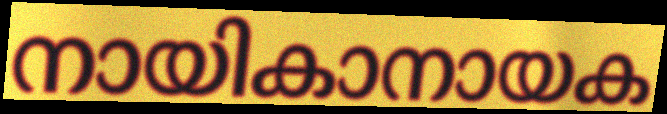
നായികാനായക